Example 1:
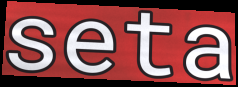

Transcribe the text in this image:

seta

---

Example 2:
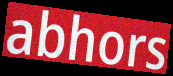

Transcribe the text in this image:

abhors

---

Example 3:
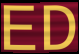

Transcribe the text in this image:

ED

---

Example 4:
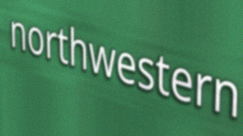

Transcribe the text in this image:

northwestern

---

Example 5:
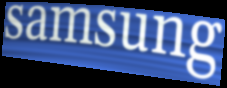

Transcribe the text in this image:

samsung